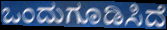
ಒಂದುಗೂಡಿಸಿದೆ